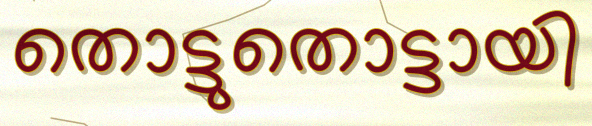
തൊട്ടുതൊട്ടായി